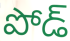
పోడ్